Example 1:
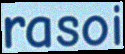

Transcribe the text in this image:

rasoi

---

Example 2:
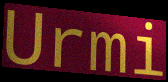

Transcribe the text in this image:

Urmi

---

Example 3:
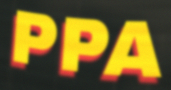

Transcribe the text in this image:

PPA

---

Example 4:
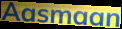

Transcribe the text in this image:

Aasmaan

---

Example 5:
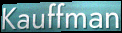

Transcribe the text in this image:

Kauffman